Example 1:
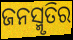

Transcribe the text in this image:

ଜନସ୍ମୃତିର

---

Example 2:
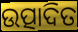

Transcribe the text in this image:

ଉତ୍ପାଦିତ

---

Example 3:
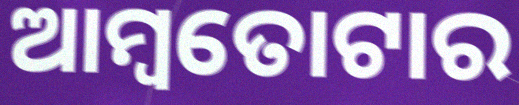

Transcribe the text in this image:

ଆମ୍ବତୋଟାର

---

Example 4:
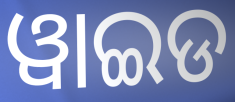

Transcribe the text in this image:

ୱାଇଡ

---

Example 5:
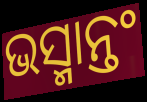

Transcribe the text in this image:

ଭସ୍ମାନ୍ତଂ